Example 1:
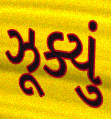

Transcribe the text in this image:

ઝૂક્યું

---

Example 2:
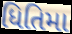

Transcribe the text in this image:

ધિતિમા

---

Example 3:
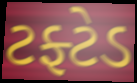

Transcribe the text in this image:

ટફ્ટેડ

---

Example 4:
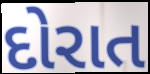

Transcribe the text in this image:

દોરાત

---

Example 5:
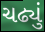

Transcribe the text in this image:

ચઢ્યું